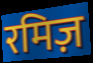
रमिज़